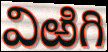
విఱిగి